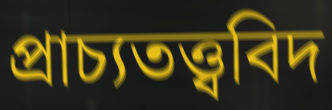
প্রাচ্যতত্ত্ববিদ